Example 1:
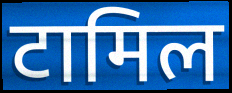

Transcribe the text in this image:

टामिल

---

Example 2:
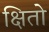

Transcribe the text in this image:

क्षितो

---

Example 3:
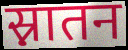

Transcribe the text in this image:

स्नातन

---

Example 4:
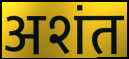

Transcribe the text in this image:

अशंत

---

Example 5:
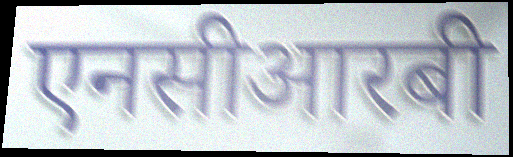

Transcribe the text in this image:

एनसीआरबी